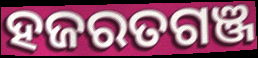
ହଜରତଗଞ୍ଜ